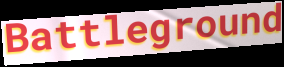
Battleground